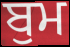
ਬੁਮ